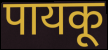
पायकू